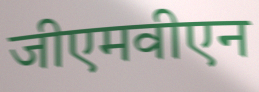
जीएमवीएन